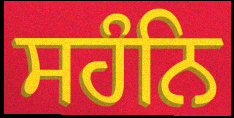
ਸਹੰਨਿ